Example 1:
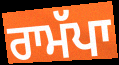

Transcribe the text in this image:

ਰਾਮੱਪਾ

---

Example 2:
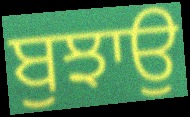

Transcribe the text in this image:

ਬੁਝਾਉ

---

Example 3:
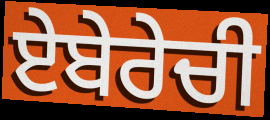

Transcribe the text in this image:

ਏਬੇਰੇਚੀ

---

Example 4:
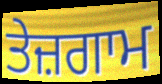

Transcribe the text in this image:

ਤੇਜ਼ਗਾਮ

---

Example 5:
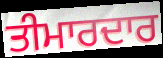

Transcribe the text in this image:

ਤੀਮਾਰਦਾਰ